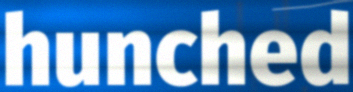
hunched